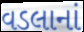
વડલાનાં